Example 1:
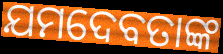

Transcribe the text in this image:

ଯମଦେବତାଙ୍କ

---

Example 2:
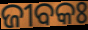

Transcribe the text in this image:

ଜୀବକଃ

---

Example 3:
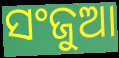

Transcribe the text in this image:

ସଂଜୁଆ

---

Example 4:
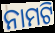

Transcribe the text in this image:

ନାମଟି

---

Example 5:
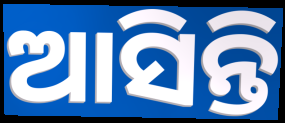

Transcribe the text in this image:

ଆସିନ୍ତି